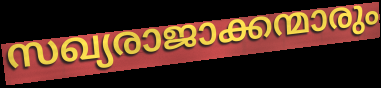
സഖ്യരാജാക്കന്മാരും